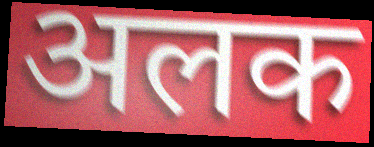
अलक